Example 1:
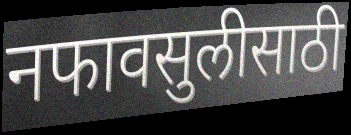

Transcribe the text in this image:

नफावसुलीसाठी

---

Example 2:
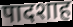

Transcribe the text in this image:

पादशाह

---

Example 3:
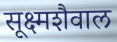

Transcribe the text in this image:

सूक्ष्मशैवाल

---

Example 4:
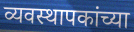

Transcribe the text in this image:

व्यवस्थापकांच्या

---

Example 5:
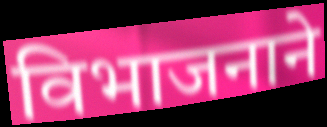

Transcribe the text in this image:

विभाजनाने